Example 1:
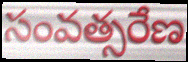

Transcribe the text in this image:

సంవత్సరేణ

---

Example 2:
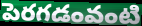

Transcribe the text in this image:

పెరగడంవంటి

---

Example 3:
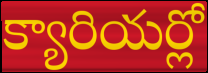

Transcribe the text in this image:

క్యారియర్లో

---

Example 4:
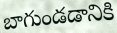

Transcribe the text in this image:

బాగుండడానికి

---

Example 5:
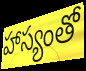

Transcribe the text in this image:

హాస్యంతో